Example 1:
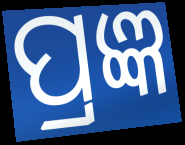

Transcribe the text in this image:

ପ୍ରଜ୍ଞ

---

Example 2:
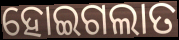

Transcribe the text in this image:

ହୋଇଗଲାତ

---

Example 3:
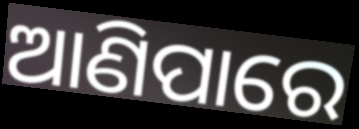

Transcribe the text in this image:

ଆଣିପାରେ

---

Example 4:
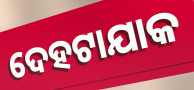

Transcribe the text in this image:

ଦେହଟାଯାକ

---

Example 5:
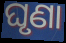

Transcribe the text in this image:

ଘୃଣା